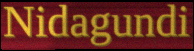
Nidagundi